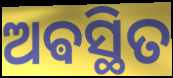
ଅଵସ୍ଥିତ